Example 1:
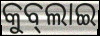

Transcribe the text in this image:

କୁବ୍‌ଲାଇ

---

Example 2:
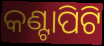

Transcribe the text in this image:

କଣ୍ଟାପିଟି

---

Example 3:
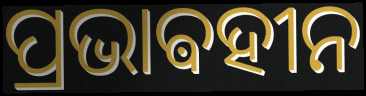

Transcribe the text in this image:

ପ୍ରଭାଵହୀନ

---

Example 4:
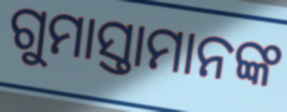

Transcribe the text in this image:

ଗୁମାସ୍ତାମାନଙ୍କ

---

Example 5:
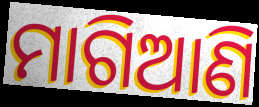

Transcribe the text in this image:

ମାଗିଆଣି